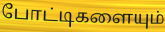
போட்டிகளையும்